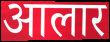
आलार